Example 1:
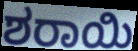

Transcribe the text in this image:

ಶರಾಯಿ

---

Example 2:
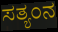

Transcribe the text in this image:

ಸತ್ಯಂನ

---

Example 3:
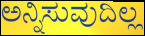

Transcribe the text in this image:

ಅನ್ನಿಸುವುದಿಲ್ಲ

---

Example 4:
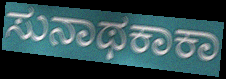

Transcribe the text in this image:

ಸುನಾಥಕಾಕಾ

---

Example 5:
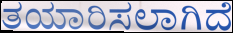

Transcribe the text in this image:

ತಯಾರಿಸಲಾಗಿದೆ